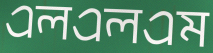
এলএলএম